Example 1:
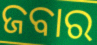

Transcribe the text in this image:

ଜବାର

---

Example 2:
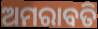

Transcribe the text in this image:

ଅମରାବତି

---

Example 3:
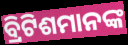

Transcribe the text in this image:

ବ୍ରିଟିଶମାନଙ୍କ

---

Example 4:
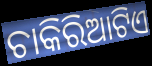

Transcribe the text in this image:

ଚାକିରିଆଟିଏ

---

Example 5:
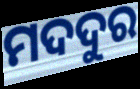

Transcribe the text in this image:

ମଦଦୁର